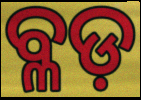
ବ୍ଳଡ଼